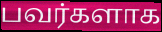
பவர்களாக